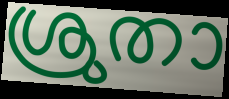
ശ്രുതാ